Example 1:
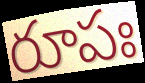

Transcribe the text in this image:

రూపః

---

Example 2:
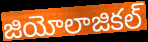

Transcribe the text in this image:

జియోలాజికల్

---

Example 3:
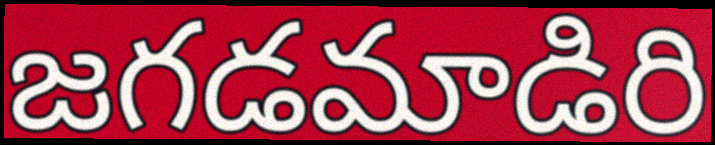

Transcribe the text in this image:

జగడమాడిరి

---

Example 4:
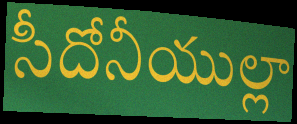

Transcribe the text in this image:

సీదోనీయుల్లా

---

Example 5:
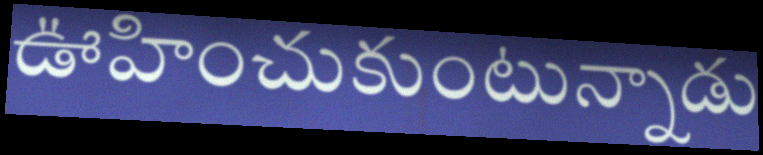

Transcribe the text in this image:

ఊహించుకుంటున్నాడు